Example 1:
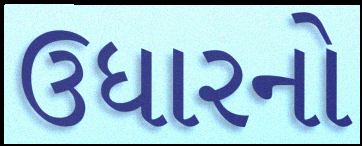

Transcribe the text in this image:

ઉધારનો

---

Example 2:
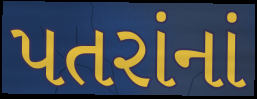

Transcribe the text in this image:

પતરાંનાં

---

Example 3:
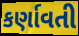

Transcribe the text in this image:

કર્ણાવતી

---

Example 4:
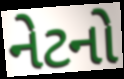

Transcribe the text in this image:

નેટનો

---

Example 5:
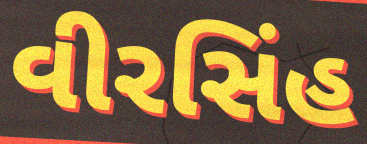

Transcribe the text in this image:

વીરસિંહ